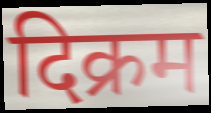
दिक्रम